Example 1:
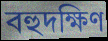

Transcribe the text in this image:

বহুদক্ষিণ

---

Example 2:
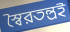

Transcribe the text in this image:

স্বৈরতন্ত্রই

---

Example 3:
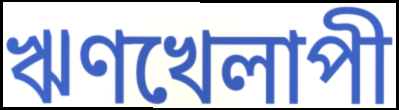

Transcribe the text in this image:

ঋণখেলাপী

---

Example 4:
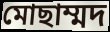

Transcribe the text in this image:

মোছাম্মদ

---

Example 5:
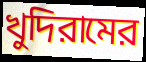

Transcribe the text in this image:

খুদিরামের